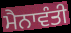
ਮੈਨਾਵੰਤੀ